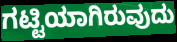
ಗಟ್ಟಿಯಾಗಿರುವುದು